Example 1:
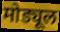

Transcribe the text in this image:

मोड्यूल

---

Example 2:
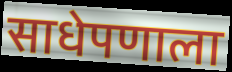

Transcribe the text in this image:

साधेपणाला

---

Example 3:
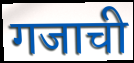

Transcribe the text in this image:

गजाची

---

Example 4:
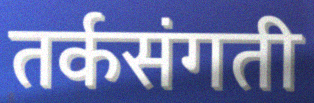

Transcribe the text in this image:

तर्कसंगती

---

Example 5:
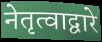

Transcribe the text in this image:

नेतृत्वाद्वारे